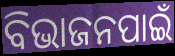
ବିଭାଜନପାଇଁ